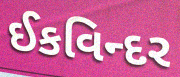
ઈકવિન્દર